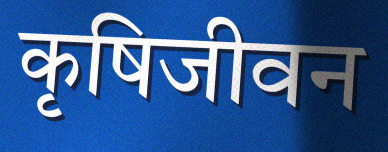
कृषिजीवन